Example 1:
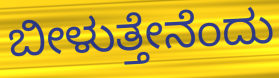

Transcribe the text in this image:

ಬೀಳುತ್ತೇನೆಂದು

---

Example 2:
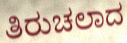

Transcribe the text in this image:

ತಿರುಚಲಾದ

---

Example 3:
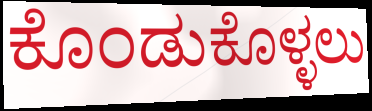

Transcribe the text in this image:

ಕೊಂಡುಕೊಳ್ಳಲು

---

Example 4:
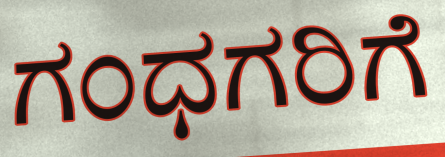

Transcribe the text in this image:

ಗಂಧಗರಿಗೆ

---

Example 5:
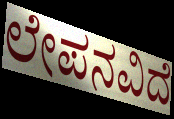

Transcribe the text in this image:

ಲೇಪನವಿದೆ